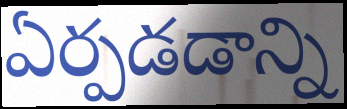
ఏర్పడడాన్ని